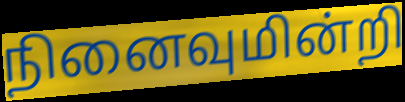
நினைவுமின்றி